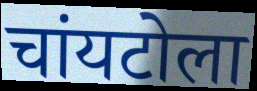
चांयटोला